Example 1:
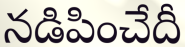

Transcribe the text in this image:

నడిపించేదీ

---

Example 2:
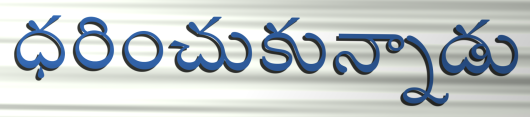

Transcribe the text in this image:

ధరించుకున్నాడు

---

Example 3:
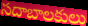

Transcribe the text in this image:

సదాబాలకులు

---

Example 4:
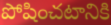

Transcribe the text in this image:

పోషించటానికి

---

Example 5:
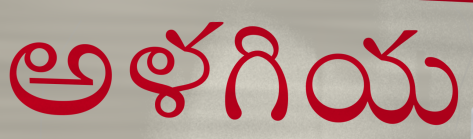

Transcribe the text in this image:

అళగియ